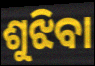
ଶୁଝିବା